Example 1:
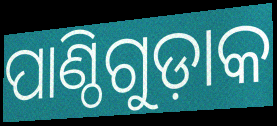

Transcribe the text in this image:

ପାଣ୍ଠିଗୁଡ଼ାକ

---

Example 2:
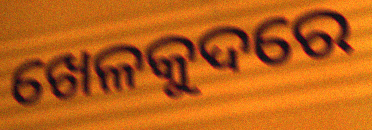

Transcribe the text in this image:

ଖେଳକୁଦରେ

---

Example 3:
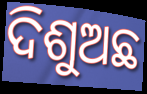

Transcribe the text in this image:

ଦିଶୁଅଛ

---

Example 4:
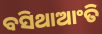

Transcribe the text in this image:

ବସିଥାଆଂତି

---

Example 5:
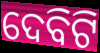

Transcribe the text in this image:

ଦେବିଟି